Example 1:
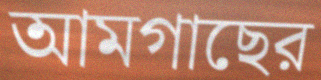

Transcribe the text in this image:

আমগাছের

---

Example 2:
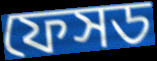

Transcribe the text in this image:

ফেসড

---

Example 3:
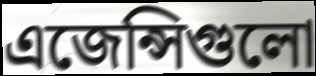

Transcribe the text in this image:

এজেন্সিগুলো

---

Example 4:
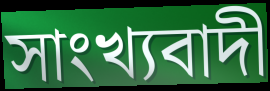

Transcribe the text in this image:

সাংখ্যবাদী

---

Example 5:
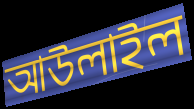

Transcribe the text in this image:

আউলাইল